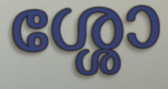
ശ്ശോ